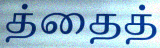
த்தைத்